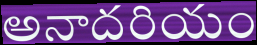
అనాదరియం